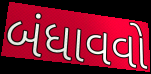
બંધાવવો